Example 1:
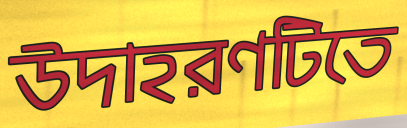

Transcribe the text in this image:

উদাহরণটিতে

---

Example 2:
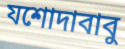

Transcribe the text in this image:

যশোদাবাবু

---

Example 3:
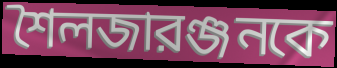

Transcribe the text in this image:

শৈলজারঞ্জনকে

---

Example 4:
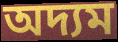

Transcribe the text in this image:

অদ্যম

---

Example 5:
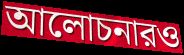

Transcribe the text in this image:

আলোচনারও